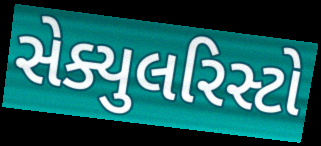
સેક્યુલરિસ્ટો